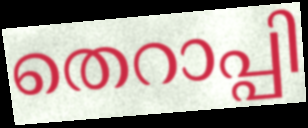
തെറാപ്പി